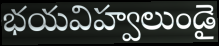
భయవిహ్వలుండై